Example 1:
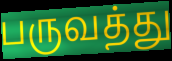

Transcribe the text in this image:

பருவத்து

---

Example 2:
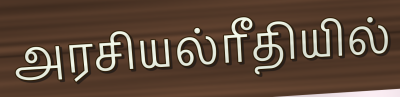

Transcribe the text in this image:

அரசியல்ரீதியில்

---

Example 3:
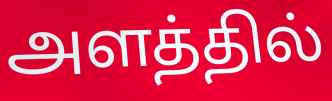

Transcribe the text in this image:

அளத்தில்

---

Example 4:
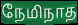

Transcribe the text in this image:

நேமிநாத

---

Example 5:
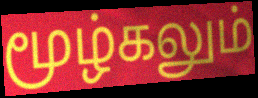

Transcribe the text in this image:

மூழ்கலும்